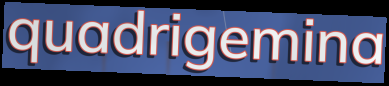
quadrigemina